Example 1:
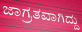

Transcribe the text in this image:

ಜಾಗ್ರತವಾಗಿದ್ದು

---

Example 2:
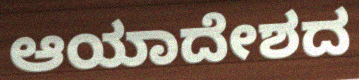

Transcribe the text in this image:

ಆಯಾದೇಶದ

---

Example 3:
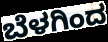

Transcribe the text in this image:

ಬೆಳಗಿಂದ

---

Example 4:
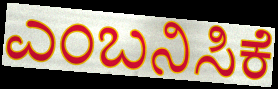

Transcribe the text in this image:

ಎಂಬನಿಸಿಕೆ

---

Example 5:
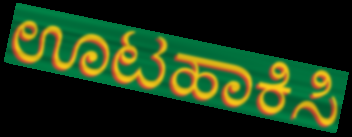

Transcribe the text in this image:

ಊಟಹಾಕಿಸಿ